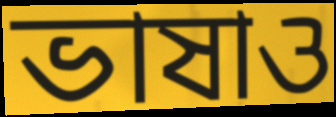
ভাষাও